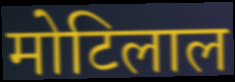
मोटिलाल